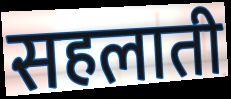
सहलाती